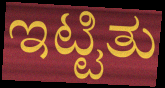
ಇಟ್ಟಿತು